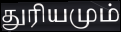
துரியமும்